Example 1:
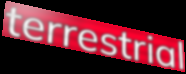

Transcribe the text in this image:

terrestrial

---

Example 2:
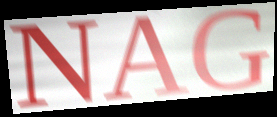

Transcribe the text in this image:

NAG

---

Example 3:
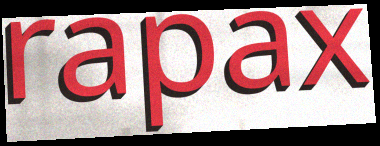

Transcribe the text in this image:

rapax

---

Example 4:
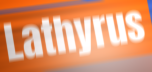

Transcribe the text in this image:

Lathyrus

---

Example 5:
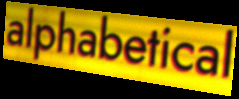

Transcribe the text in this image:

alphabetical